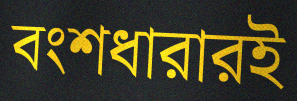
বংশধারারই